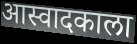
आस्वादकाला